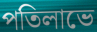
পতিলাভে